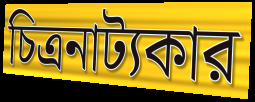
চিত্রনাট্যকার